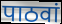
पाठवां